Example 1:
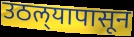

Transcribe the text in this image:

उठल्यापासून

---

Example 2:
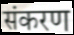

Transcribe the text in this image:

संकरण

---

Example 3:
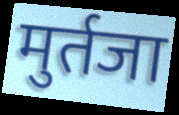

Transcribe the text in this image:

मुर्तजा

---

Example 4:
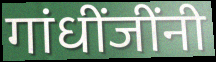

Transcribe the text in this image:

गांधींजींनी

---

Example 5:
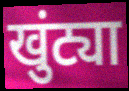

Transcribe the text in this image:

खुंट्या